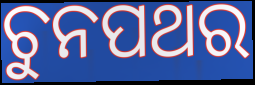
ଚୁନପଥର